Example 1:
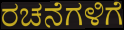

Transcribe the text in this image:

ರಚನೆಗಳಿಗೆ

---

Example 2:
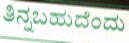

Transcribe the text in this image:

ತಿನ್ನಬಹುದೆಂದು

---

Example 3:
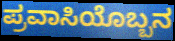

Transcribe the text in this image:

ಪ್ರವಾಸಿಯೊಬ್ಬನ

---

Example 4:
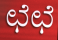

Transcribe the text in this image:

ಛೆಛೆ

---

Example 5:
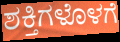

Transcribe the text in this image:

ಶಕ್ತಿಗಳೊಳಗೆ